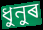
ধুনুৰ